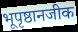
भूपृष्ठानजीक